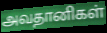
அவதானிகள்